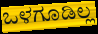
ಒಳಗೂಡಿಲ್ಲ